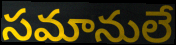
సమానులే